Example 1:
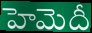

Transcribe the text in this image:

హెమెదీ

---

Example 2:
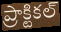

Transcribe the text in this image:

ప్రాక్టికల్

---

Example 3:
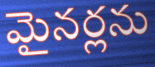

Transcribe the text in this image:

మైనర్లను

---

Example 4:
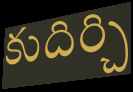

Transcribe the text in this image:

కుదిర్చి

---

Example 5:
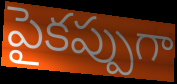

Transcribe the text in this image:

పైకప్పుగా